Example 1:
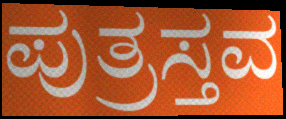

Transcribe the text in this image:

ಪುತ್ರಸ್ತವ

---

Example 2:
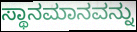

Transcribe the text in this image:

ಸ್ಥಾನಮಾನವನ್ನು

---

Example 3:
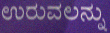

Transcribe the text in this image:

ಉರುವಲನ್ನು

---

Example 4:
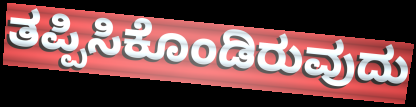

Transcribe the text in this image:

ತಪ್ಪಿಸಿಕೊಂಡಿರುವುದು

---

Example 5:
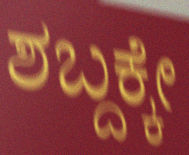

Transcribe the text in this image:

ಶಬ್ದಕ್ಕೇ